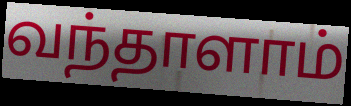
வந்தாளாம்